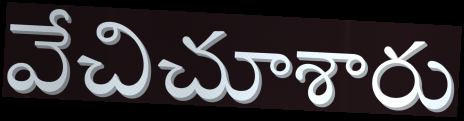
వేచిచూశారు